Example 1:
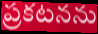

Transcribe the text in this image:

ప్రకటనను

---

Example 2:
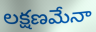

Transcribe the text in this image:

లక్షణమేనా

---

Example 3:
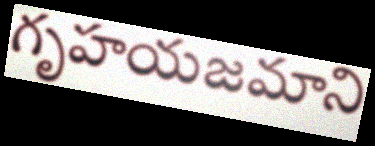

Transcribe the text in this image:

గృహయజమాని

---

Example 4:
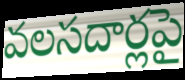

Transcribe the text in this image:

వలసదార్లపై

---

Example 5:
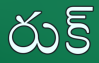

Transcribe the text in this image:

రుక్